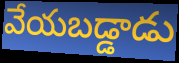
వేయబడ్డాడు